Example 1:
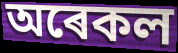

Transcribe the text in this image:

অৰেকল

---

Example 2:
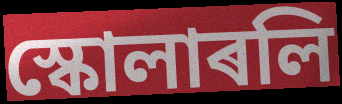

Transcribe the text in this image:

স্কোলাৰলি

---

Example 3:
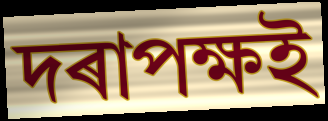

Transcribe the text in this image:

দৰাপক্ষই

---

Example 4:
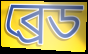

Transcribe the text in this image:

ব্ৰেড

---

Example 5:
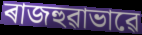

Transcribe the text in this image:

ৰাজহুৱাভাৱে